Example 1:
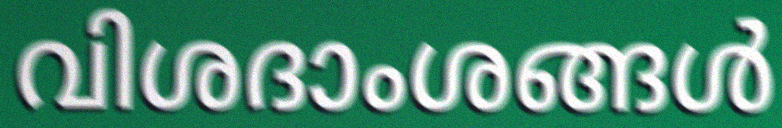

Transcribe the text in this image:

വിശദാംശങ്ങൾ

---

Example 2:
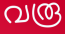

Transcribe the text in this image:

വരൂ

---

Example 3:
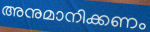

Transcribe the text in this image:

അനുമാനിക്കണം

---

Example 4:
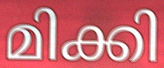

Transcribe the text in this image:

മിക്കി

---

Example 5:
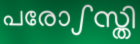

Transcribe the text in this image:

പരോഽസ്തി